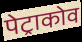
पेट्राकोव